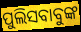
ପୁଲିସବାବୁଙ୍କ